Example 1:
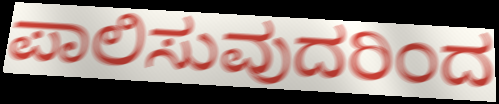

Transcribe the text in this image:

ಪಾಲಿಸುವುದರಿಂದ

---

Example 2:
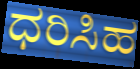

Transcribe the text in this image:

ಧರಿಸಿಹ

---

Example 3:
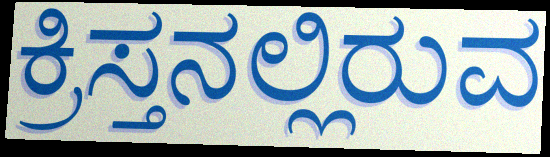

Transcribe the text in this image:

ಕ್ರಿಸ್ತನಲ್ಲಿರುವ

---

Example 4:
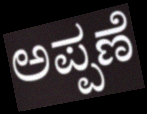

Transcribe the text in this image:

ಅಪ್ಪಣೆ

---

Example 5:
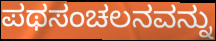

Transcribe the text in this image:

ಪಥಸಂಚಲನವನ್ನು